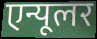
एन्यूलर